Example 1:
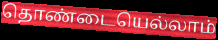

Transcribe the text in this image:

தொண்டையெல்லாம்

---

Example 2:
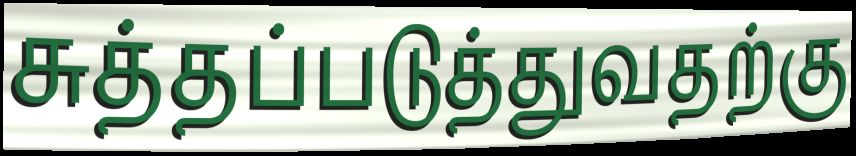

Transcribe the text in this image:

சுத்தப்படுத்துவதற்கு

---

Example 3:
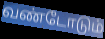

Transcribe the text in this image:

வண்டோடும்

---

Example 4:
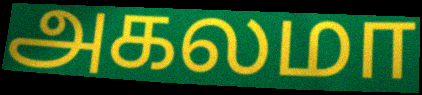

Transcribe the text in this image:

அகலமா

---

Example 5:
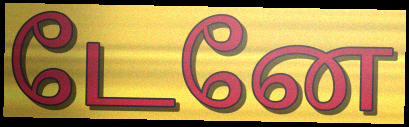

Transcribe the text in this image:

டேனே